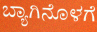
ಬ್ಯಾಗಿನೊಳಗೆ